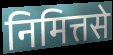
निमित्तसे